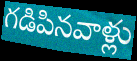
గడిపినవాళ్లు